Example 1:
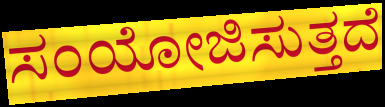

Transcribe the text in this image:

ಸಂಯೋಜಿಸುತ್ತದೆ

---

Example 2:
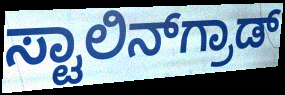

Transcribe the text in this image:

ಸ್ಟಾಲಿನ್‌ಗ್ರಾಡ್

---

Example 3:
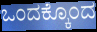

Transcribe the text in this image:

ಒಂದಕ್ಕೊಂದ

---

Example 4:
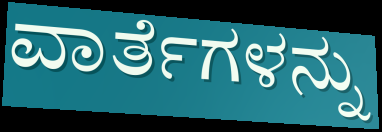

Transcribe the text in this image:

ವಾರ್ತೆಗಳನ್ನು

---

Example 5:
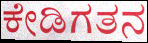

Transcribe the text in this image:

ಕೇಡಿಗತನ